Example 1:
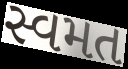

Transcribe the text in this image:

સ્વમત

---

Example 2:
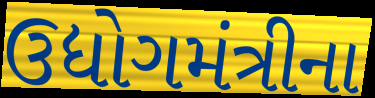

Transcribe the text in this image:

ઉદ્યોગમંત્રીના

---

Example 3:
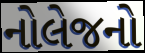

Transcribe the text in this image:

નોલેજનો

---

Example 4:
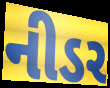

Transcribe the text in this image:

નીડર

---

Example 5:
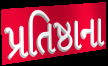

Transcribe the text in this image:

પ્રતિષ્ઠાના